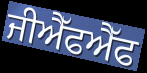
ਜੀਐੱਫਐੱਫ